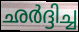
ഛർദ്ദിച്ച